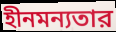
হীনমন্যতার